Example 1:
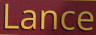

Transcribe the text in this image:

Lance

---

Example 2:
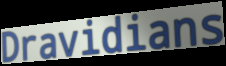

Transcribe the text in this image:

Dravidians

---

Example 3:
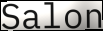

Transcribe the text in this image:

Salon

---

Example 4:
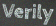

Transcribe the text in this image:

Verily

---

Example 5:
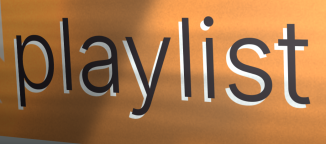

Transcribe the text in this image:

playlist